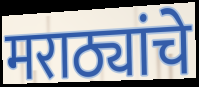
मराठ्यांचे